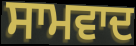
ਸਾਮਵਾਦ